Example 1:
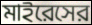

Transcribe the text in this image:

মাইরেসের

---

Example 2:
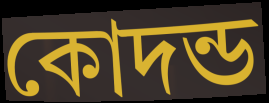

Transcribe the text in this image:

কোদন্ড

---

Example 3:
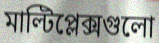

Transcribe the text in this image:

মাল্টিপ্লেক্সগুলো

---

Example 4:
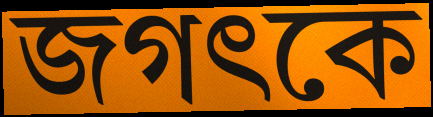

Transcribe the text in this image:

জগৎকে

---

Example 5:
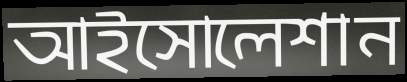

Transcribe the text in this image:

আইসোলেশান